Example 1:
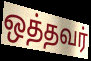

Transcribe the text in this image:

ஒத்தவர்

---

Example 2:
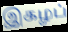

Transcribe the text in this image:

இகழப்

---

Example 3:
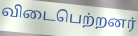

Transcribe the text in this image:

விடைபெற்றனர்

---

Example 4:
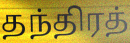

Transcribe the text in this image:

தந்திரத்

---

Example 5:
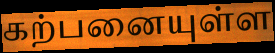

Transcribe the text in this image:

கற்பனையுள்ள